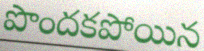
పొందకపోయిన